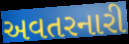
અવતરનારી